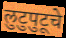
लुटुपुटूचे